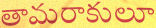
తామరాకులూ